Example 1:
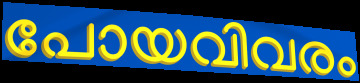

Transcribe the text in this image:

പോയവിവരം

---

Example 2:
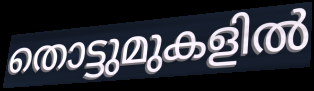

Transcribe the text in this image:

തൊട്ടുമുകളിൽ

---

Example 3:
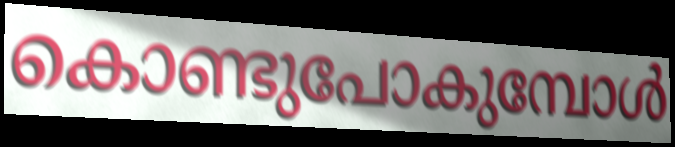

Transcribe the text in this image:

കൊണ്ടുപോകുമ്പോൾ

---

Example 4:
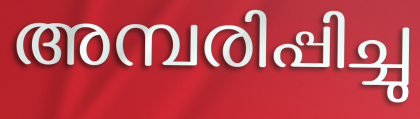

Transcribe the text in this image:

അമ്പരിപ്പിച്ചു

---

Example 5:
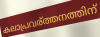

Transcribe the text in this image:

കലാപ്രവര്ത്തനത്തിന്